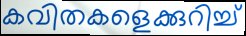
കവിതകളെക്കുറിച്ച്